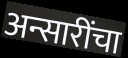
अन्सारींचा